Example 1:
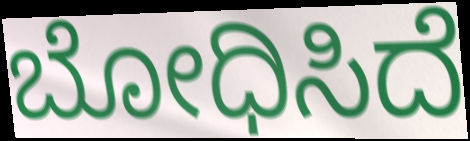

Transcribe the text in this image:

ಬೋಧಿಸಿದೆ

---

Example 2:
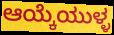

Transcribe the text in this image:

ಆಯ್ಕೆಯುಳ್ಳ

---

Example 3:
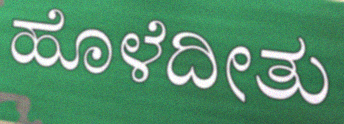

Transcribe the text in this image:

ಹೊಳೆದೀತು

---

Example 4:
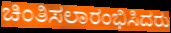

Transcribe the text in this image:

ಚಿಂತಿಸಲಾರಂಭಿಸಿದರು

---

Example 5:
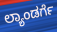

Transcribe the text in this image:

ಲ್ಯಾಂಡರ್ಗೆ